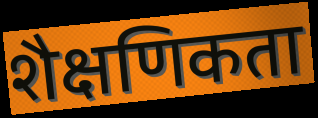
शैक्षणिकता